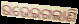
ଉଭେଇଗଲାଣି